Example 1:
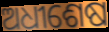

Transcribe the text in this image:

ଅଧୀଶେଷ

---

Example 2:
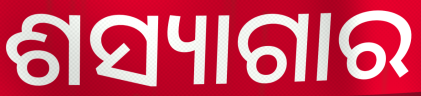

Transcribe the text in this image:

ଶସ୍ୟାଗାର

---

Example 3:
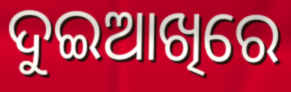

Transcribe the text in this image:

ଦୁଇଆଖିରେ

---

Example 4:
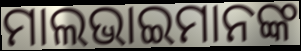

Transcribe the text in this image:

ମାଲଭାଇମାନଙ୍କ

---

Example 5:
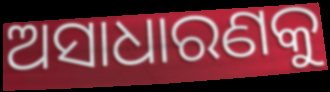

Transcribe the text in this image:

ଅସାଧାରଣକୁ